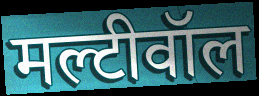
मल्टीवॉल